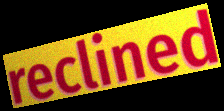
reclined